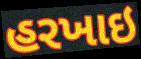
હરખાઇ